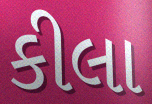
કીલા